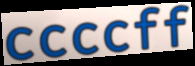
ccccff